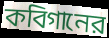
কবিগানের